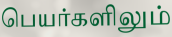
பெயர்களிலும்